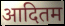
आदितम